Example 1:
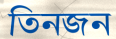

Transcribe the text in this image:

তিনজন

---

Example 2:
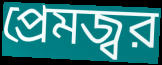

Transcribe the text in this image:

প্রেমজ্বর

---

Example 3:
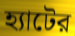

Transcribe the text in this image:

হ্যাটের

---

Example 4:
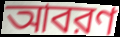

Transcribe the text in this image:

আবরণ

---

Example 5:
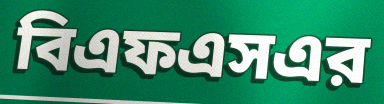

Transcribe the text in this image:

বিএফএসএর